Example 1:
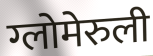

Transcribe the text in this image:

ग्लोमेरुली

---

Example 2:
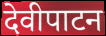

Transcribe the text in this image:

देवीपाटन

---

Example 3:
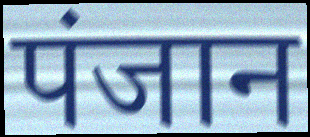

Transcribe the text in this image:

पंजान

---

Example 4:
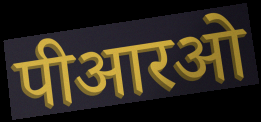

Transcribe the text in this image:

पीआरओ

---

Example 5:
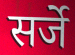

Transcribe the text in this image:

सर्जे